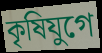
কৃষিযুগে